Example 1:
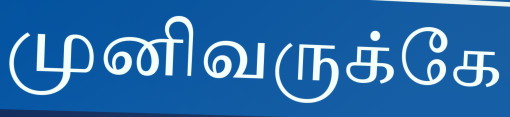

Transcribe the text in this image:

முனிவருக்கே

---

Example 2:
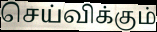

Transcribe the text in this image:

செய்விக்கும்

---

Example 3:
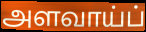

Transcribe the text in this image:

அளவாய்ப்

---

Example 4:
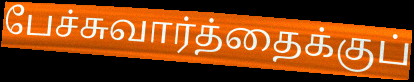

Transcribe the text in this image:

பேச்சுவார்த்தைக்குப்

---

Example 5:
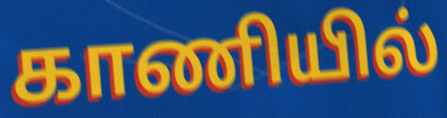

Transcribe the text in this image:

காணியில்